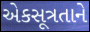
એકસૂત્રતાને